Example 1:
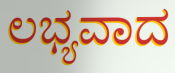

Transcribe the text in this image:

ಲಭ್ಯವಾದ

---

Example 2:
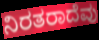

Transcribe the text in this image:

ನಿರತರಾದೆವು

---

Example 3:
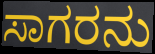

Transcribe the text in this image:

ಸಾಗರನು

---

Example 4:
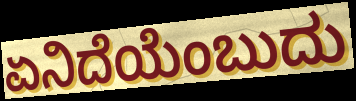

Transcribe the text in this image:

ಏನಿದೆಯೆಂಬುದು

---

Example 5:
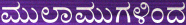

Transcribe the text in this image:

ಮುಲಾಮುಗಳಿಂದ